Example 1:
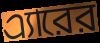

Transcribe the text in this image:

এ্যারের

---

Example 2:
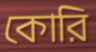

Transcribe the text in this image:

কোরি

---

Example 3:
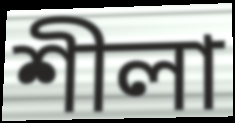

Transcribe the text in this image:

শীলা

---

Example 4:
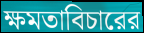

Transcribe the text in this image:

ক্ষমতাবিচারের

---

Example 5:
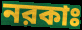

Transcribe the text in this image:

নরকাঃ